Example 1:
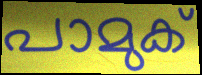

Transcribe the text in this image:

പാമുക്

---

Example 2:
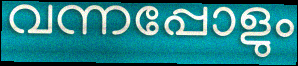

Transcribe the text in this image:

വന്നപ്പോളും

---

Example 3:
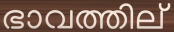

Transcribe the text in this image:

ഭാവത്തില്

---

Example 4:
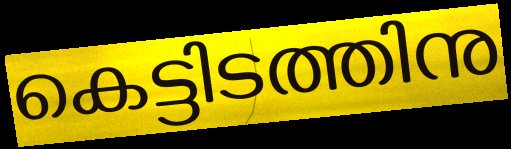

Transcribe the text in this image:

കെട്ടിടത്തിനു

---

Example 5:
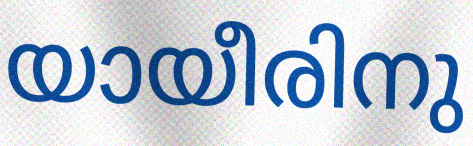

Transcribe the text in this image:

യായീരിനു